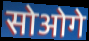
सोओगे